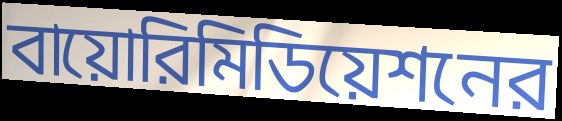
বায়োরিমিডিয়েশনের